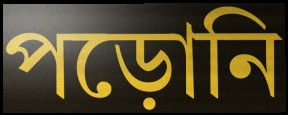
পড়োনি